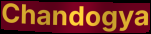
Chandogya